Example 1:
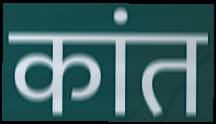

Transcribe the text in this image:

कांत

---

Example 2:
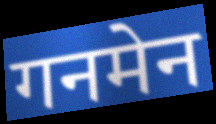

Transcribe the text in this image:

गनमेन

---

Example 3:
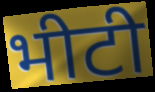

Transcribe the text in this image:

भीटी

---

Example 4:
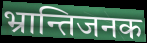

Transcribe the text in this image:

भ्रान्तिजनक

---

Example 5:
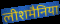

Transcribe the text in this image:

लीशमैनिया